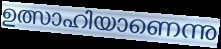
ഉത്സാഹിയാണെന്നു